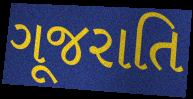
ગૂજરાતિ